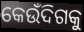
କେଉଁଦିଗକୁ